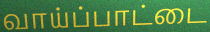
வாய்ப்பாட்டை